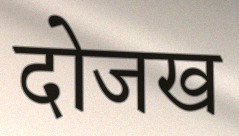
दोजख